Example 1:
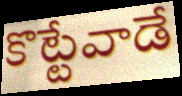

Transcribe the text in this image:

కొట్టేవాడే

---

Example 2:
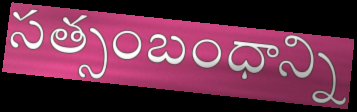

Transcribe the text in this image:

సత్సంబంధాన్ని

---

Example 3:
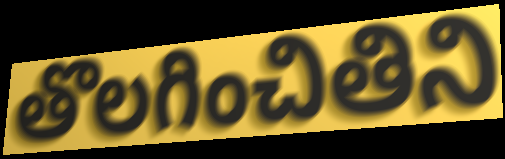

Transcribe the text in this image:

తొలగించితిని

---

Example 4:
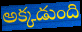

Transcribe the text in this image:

అక్కడుంది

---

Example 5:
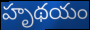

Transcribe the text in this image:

హృథయం